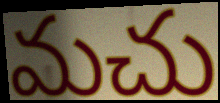
మచు